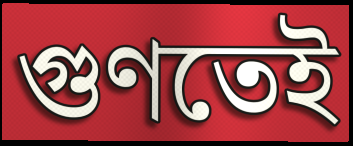
গুণতেই